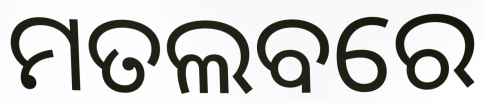
ମତଲବରେ